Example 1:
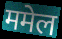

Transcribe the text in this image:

ममेल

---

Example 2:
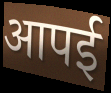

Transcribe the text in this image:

आपई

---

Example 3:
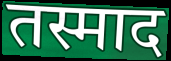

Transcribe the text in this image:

तस्माद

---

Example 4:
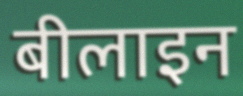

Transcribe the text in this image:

बीलाइन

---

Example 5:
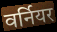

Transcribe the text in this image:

वर्नियर